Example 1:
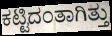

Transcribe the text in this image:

ಕಟ್ಟಿದಂತಾಗಿತ್ತು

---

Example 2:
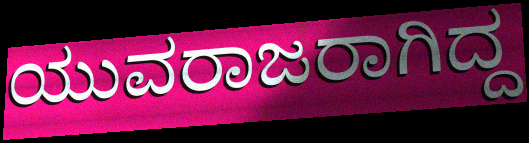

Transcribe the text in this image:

ಯುವರಾಜರಾಗಿದ್ದ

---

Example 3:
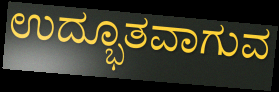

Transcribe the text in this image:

ಉದ್ಭೂತವಾಗುವ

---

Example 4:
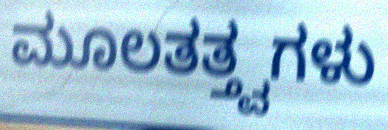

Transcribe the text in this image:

ಮೂಲತತ್ತ್ವಗಳು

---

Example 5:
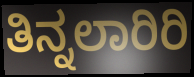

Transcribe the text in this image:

ತಿನ್ನಲಾರಿರಿ